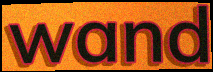
wand